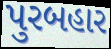
પુરબહાર